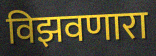
विझवणारा